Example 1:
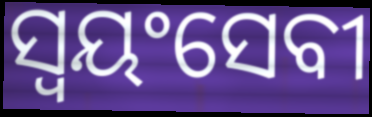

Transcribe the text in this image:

ସ୍ୱୟଂସେବୀ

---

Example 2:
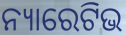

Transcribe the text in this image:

ନ୍ୟାରେଟିଭ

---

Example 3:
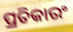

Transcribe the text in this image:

ପ୍ରତିକାରଂ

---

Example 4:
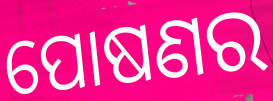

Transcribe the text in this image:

ପୋଷଣର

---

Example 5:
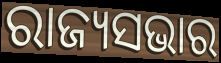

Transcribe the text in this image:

ରାଜ୍ୟସଭାର